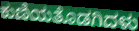
ಕುಣಿಯತೊಡಗಿದಳು